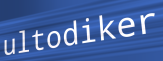
ultodiker